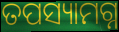
ତପସ୍ୟାମଗ୍ନ